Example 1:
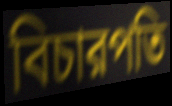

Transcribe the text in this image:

বিচারপতি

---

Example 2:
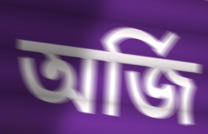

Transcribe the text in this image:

অর্জি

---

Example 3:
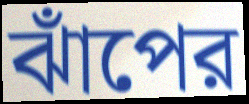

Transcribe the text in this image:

ঝাঁপের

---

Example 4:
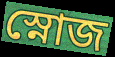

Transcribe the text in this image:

স্নোজ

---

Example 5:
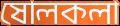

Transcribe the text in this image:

ষোলকলা